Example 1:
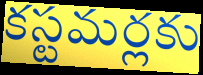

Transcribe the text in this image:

కస్టమర్లకు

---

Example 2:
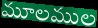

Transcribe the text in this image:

మూలముల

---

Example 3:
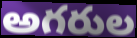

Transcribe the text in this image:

అగరుల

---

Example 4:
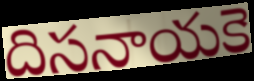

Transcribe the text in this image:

దిసనాయకె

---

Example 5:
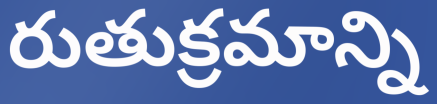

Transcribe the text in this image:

రుతుక్రమాన్ని